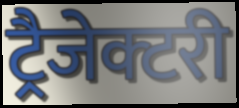
ट्रैजेक्‍टरी